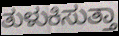
ತುಳುಕಿಸುತ್ತಾ